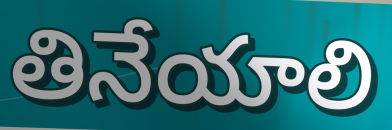
తినేయాలి